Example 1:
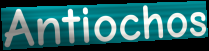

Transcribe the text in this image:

Antiochos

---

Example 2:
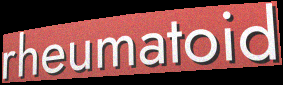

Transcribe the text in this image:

rheumatoid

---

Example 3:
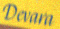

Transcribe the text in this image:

Devara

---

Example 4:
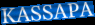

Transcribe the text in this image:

KASSAPA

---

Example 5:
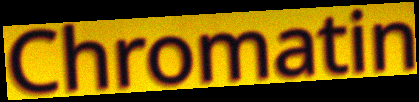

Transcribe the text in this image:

Chromatin